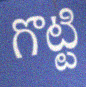
గొట్టి